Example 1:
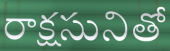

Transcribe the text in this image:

రాక్షసునితో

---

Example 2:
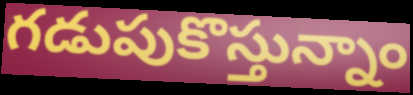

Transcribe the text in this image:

గడుపుకొస్తున్నాం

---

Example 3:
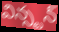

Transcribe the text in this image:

విన్స్టన్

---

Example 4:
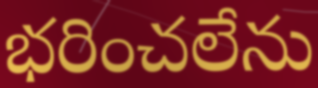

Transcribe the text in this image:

భరించలేను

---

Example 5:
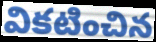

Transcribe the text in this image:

వికటించిన